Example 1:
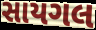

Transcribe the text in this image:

સાયગલ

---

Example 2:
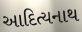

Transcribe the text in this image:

આદિત્યનાથ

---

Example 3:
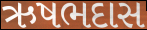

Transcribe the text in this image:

ઋષભદાસ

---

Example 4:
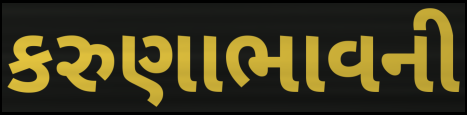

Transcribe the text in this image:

કરુણાભાવની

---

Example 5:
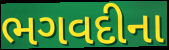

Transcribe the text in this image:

ભગવદીના